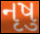
નૃષુ